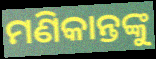
ମଣିକାନ୍ତଙ୍କୁ